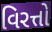
વિરત્તો